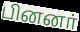
பினனர்